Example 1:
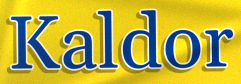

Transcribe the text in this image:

Kaldor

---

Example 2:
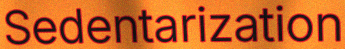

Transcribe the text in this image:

Sedentarization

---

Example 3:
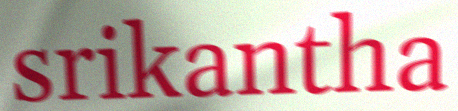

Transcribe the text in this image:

srikantha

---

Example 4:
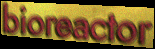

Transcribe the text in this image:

bioreactor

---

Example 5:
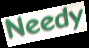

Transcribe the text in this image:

Needy